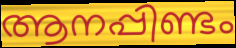
ആനപ്പിണ്ടം